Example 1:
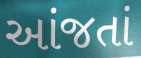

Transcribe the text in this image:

આંજતાં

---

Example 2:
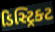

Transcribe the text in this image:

ડિસ્ટ્રિક્ટ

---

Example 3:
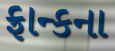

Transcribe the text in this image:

ફ્રાન્કના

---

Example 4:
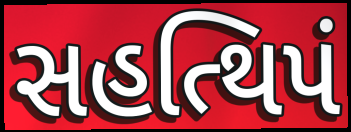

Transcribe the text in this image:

સહત્થિપં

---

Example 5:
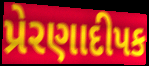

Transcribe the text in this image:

પ્રેરણાદીપક